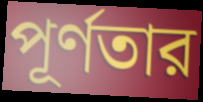
পূর্ণতার